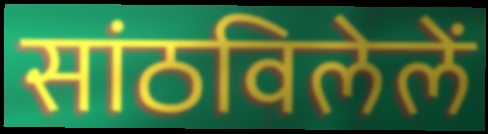
सांठविलेलें